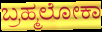
ಬ್ರಹ್ಮಲೋಕಾ